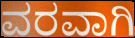
ವರವಾಗಿ